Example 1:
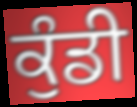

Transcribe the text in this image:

ਕੁੰਡੀ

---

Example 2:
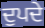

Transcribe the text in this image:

ਦੁਪਦੇ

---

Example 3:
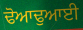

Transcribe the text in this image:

ਢੋਆਢੁਆਈ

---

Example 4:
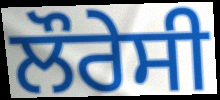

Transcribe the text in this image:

ਲੌਰੇਸੀ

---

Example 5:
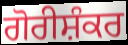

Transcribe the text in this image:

ਗੋਰੀਸ਼ੰਕਰ